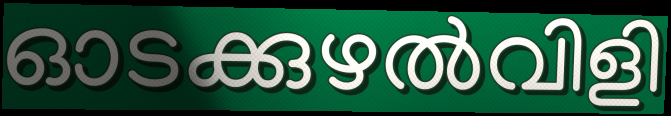
ഓടക്കുഴൽവിളി